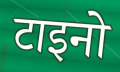
टाइनो